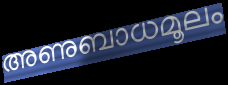
അണുബാധമൂലം